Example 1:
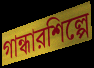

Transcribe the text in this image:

গান্ধারশিল্পে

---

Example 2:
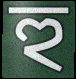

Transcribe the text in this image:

হু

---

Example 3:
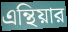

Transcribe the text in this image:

এন্থিয়ার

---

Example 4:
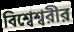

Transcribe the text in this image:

বিশ্বেশ্বরীর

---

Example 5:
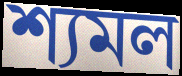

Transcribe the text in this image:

শ্যমল